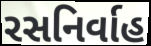
રસનિર્વાહ